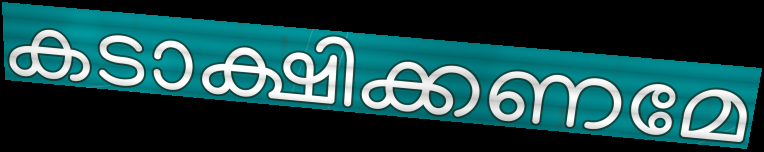
കടാക്ഷിക്കണമേ